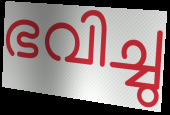
ഭവിച്ചു